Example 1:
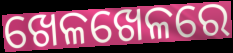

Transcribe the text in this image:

ଖେଳଖେଳରେ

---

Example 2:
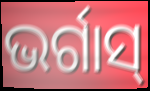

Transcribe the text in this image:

ଭର୍ଗାସ୍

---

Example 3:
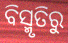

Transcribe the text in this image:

ବିସ୍ମୃତିରୁ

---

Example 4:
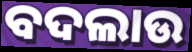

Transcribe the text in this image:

ବଦଲାଉ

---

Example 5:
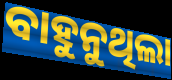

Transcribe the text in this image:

ବାହୁନୁଥିଲା